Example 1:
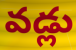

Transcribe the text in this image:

వడ్లు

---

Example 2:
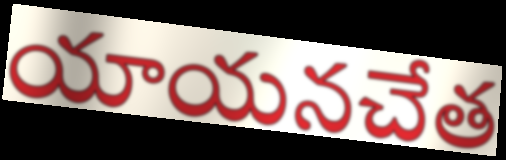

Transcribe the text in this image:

యాయనచేత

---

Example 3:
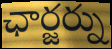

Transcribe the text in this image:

ఛార్జర్ను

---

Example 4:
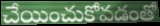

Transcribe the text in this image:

చేయించుకోవడంతో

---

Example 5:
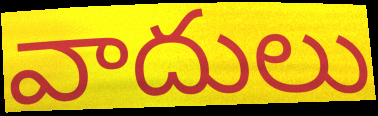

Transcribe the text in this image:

వాదులు